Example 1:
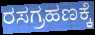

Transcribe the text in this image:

ರಸಗ್ರಹಣಕ್ಕೆ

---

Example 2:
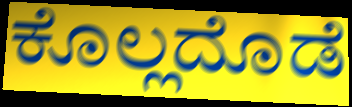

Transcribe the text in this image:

ಕೊಲ್ಲದೊಡೆ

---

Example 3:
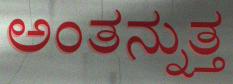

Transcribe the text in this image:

ಅಂತನ್ನುತ್ತ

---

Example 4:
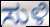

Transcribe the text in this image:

ಸುಳಿ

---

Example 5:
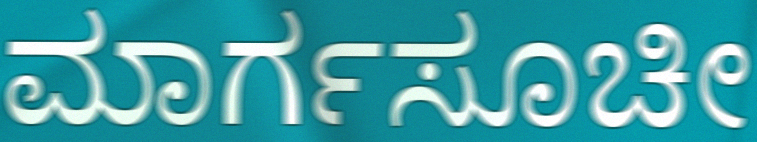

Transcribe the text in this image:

ಮಾರ್ಗಸೂಚೀ